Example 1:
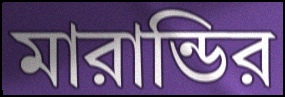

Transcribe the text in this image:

মারান্ডির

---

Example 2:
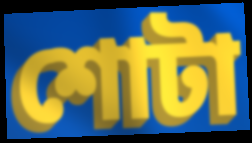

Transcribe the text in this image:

শোটা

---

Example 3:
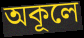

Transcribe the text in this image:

অকূলে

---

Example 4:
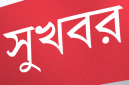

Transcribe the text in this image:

সুখবর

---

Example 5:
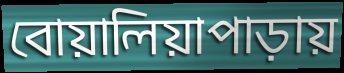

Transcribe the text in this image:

বোয়ালিয়াপাড়ায়